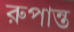
রুপান্ত